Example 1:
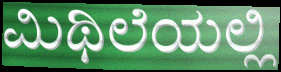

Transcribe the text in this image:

ಮಿಥಿಲೆಯಲ್ಲಿ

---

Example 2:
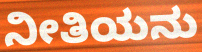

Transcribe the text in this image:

ನೀತಿಯನು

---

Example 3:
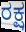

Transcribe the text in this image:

ರಕ್ಷ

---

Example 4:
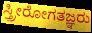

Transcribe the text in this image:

ಸ್ತ್ರೀರೋಗತಜ್ಞರು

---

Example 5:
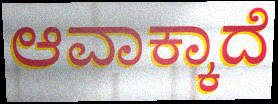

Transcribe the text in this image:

ಆವಾಕ್ಕಾದೆ